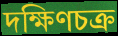
দক্ষিণচক্র